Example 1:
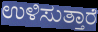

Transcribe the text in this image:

ಉಳಿಸುತ್ತಾರೆ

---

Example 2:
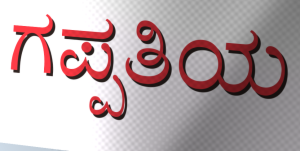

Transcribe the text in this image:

ಗಪ್ಪತಿಯ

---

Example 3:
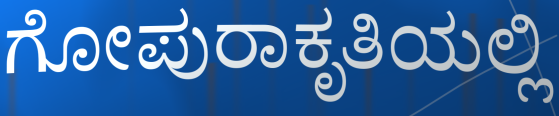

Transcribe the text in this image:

ಗೋಪುರಾಕೃತಿಯಲ್ಲಿ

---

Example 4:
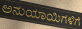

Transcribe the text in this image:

ಅನುಯಾಯಿಗಳಿಗೆ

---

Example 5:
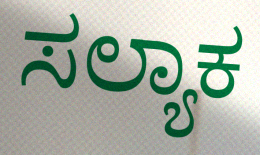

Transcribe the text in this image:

ಸಲ್ಯಾಕ